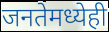
जनतेमध्येही